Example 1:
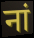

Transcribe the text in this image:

नां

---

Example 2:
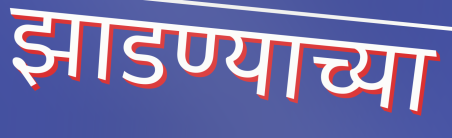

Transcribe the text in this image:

झाडण्याच्या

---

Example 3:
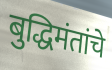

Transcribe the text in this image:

बुद्धिमंतांचे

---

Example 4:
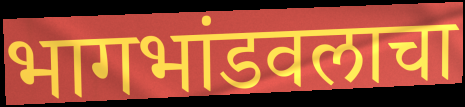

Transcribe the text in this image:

भागभांडवलाचा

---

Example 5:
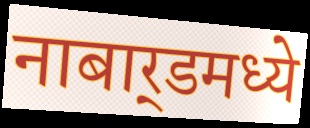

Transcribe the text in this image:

नाबार्डमध्ये